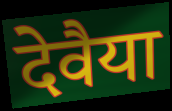
देवैया